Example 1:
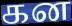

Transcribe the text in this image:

கன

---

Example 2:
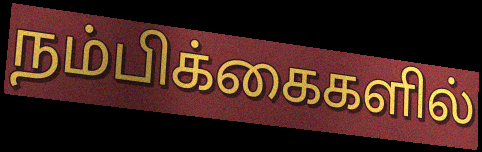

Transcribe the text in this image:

நம்பிக்கைகளில்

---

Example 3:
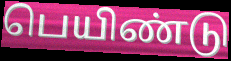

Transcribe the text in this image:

பெயிண்டு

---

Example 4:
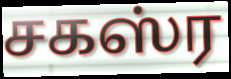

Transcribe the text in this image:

சகஸ்ர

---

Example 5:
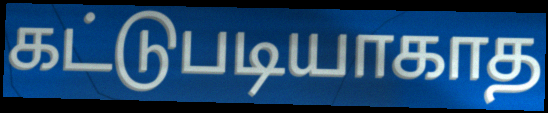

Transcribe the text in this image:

கட்டுபடியாகாத